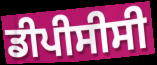
ਡੀਪੀਸੀਸੀ